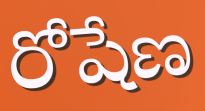
రోషేణ